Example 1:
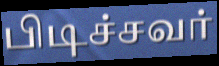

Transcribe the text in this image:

பிடிச்சவர்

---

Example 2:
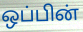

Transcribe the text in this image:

ஒப்பின்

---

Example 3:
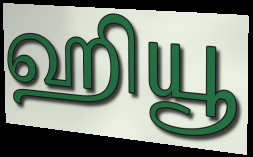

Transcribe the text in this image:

ஹியூ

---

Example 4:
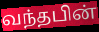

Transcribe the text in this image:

வந்தபின்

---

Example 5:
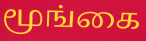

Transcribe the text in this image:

மூங்கை